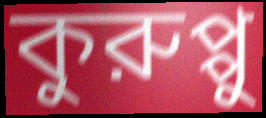
কুরুপ্পু